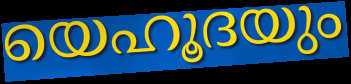
യെഹൂദയും